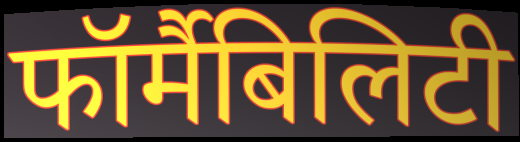
फॉर्मैबिलिटी